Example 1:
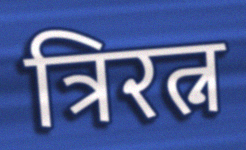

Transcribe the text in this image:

त्रिरत्न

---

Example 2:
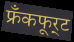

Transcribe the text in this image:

फ्रँकफूर्ट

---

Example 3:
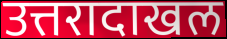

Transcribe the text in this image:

उत्तरादाखल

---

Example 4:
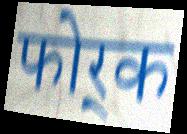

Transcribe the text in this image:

फोर्क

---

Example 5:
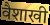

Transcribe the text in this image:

वैशाखी